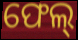
ଫେଲ୍